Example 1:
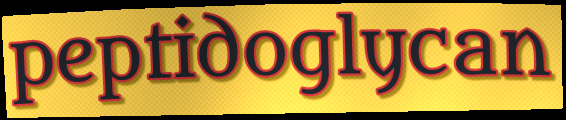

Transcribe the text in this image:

peptidoglycan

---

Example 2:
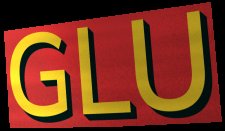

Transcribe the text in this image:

GLU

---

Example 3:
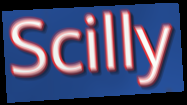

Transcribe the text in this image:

Scilly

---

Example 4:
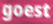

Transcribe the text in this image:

goest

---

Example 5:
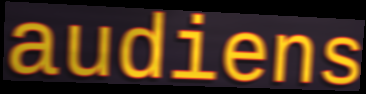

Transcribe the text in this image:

audiens